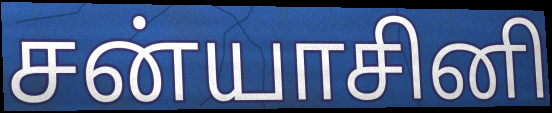
சன்யாசினி